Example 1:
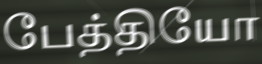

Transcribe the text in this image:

பேத்தியோ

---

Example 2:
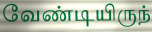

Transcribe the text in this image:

வேண்டியிருந்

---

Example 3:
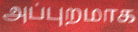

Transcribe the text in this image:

அப்புறமாக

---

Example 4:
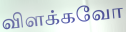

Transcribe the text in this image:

விளக்கவோ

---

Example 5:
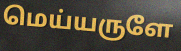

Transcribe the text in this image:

மெய்யருளே